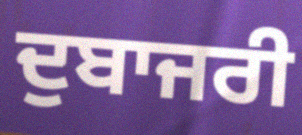
ਦੁਬਾਜਰੀ